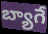
బ్యాగే